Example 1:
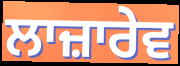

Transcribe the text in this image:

ਲਾਜ਼ਾਰੇਵ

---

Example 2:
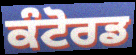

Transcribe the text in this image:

ਕੰਟੋਰਡ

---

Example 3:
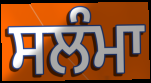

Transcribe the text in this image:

ਸਲੰਮਾ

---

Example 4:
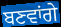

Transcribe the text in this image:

ਬਣਵਾਂਗੇ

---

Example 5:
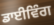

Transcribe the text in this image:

ਡਾਈਵਿੰਗ